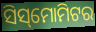
ସିସ୍‌ମୋମିଟର